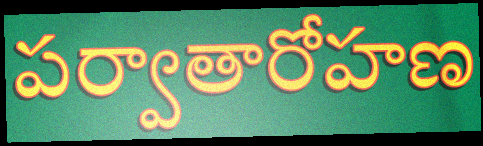
పర్వాతారోహణ